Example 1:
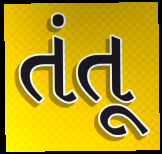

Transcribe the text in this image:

તંતૂ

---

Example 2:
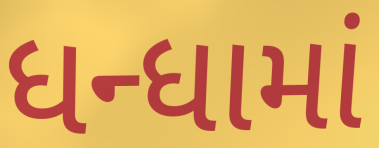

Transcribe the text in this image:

ધન્ધામાં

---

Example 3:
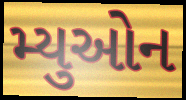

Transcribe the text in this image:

મ્યુઓન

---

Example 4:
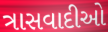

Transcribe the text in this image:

ત્રાસવાદીઓ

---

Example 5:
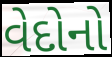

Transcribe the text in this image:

વેદોનો